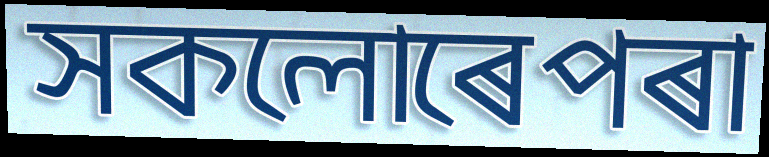
সকলোৰেপৰা